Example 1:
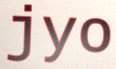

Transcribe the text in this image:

jyo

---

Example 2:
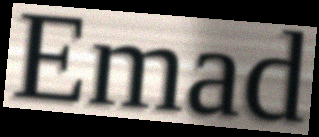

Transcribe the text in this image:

Emad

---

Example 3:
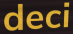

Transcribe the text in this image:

deci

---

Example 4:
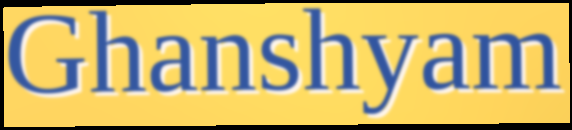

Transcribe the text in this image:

Ghanshyam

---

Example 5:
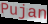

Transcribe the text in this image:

Pujan